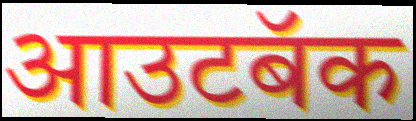
आउटबॅक